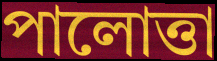
পালোত্তা